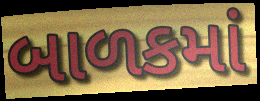
બાળકમાં